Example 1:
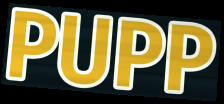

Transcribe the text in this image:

PUPP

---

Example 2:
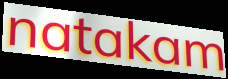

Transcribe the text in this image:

natakam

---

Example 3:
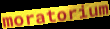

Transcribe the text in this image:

moratorium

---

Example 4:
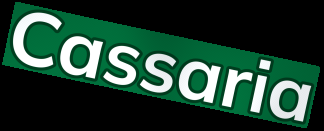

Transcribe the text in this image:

Cassaria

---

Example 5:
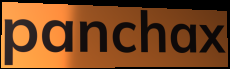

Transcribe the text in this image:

panchax